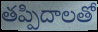
తప్పిదాలతో